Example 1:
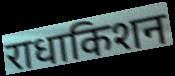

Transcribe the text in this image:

राधाकिशन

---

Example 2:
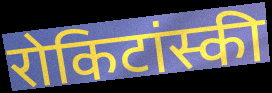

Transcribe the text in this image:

रोकिटांस्की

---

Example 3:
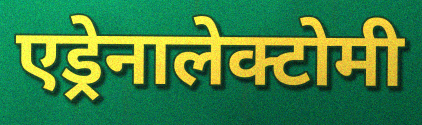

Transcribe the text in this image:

एड्रेनालेक्टोमी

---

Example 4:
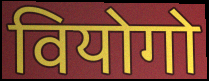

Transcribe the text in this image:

वियोगो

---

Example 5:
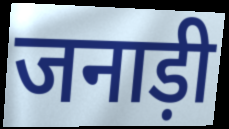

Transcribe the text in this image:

जनाड़ी